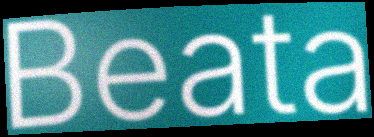
Beata